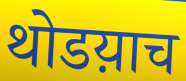
थोडय़ाच